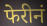
फेरीनं